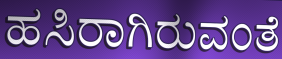
ಹಸಿರಾಗಿರುವಂತೆ